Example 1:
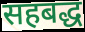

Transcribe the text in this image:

सहबद्ध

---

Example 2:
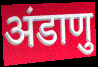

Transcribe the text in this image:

अंडाणु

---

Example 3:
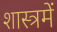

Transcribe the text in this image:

शास्त्रमें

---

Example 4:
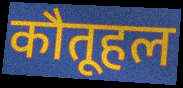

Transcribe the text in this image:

कौतूहल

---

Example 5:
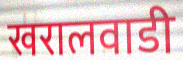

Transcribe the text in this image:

खरालवाडी